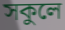
সকুলে